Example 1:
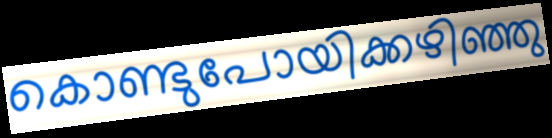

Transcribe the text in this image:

കൊണ്ടുപോയിക്കഴിഞ്ഞു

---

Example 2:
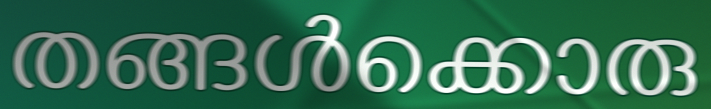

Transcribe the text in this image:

തങ്ങൾക്കൊരു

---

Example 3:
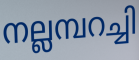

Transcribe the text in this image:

നല്ലമ്പറച്ചി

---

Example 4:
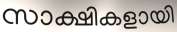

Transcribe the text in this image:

സാക്ഷികളായി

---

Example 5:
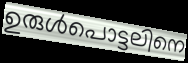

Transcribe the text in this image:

ഉരുൾപൊട്ടലിനെ